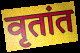
वृतांत